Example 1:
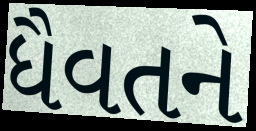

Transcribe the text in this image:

ધૈવતને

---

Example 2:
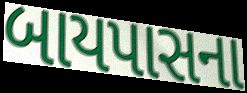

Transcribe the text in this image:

બાયપાસના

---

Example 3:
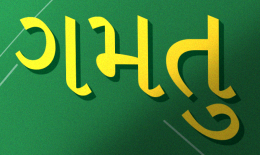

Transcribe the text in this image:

ગમતુ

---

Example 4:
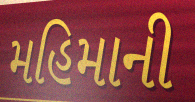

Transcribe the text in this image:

મહિમાની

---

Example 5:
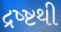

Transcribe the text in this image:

દ્રષ્ષ્ટથી